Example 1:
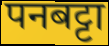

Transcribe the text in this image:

पनबट्टा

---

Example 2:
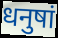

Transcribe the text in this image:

धनुषां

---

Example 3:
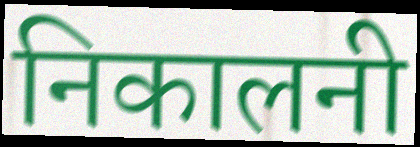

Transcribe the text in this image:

निकालनी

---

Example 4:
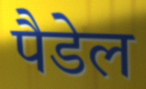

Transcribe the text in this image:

पैडेल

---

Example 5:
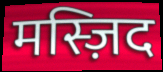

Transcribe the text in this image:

मस्ज़िद